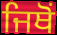
ਜਿਥੋਂ